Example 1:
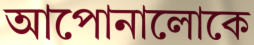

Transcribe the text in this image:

আপোনালোকে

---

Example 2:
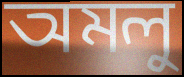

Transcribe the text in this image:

অমলু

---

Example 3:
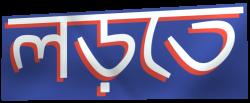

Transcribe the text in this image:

লড়তে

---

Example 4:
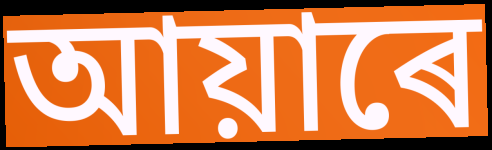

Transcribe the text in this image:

আয়াৰে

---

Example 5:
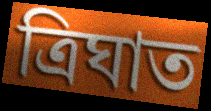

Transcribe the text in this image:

ত্ৰিঘাত